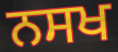
ਨਸਖ